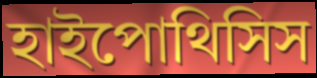
হাইপোথিসিস